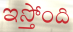
ఇస్తోంది